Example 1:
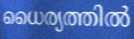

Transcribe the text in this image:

ധൈര്യത്തിൽ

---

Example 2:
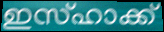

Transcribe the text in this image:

ഇസ്ഹാക്ക്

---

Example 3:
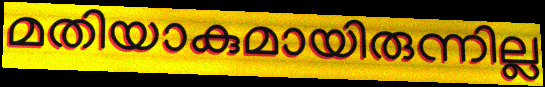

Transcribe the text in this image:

മതിയാകുമായിരുന്നില്ല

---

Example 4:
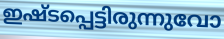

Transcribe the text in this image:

ഇഷ്ടപ്പെട്ടിരുന്നുവോ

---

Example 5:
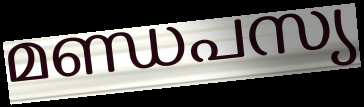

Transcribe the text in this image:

മണ്ഡപസ്യ